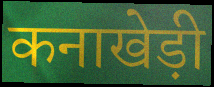
कनाखेड़ी